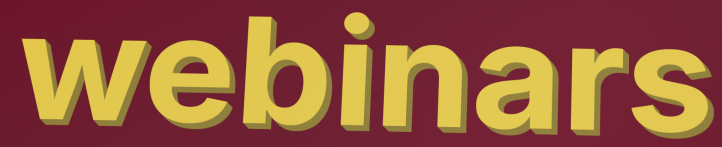
webinars